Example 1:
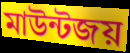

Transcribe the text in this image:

মাউন্টজয়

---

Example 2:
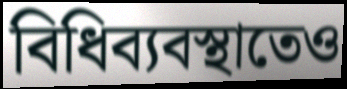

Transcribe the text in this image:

বিধিব্যবস্থাতেও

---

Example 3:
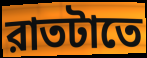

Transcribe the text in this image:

রাতটাতে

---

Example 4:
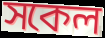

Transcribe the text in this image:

সকেল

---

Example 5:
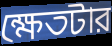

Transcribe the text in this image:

ক্ষেতটার